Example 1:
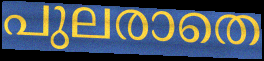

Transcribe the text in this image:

പുലരാതെ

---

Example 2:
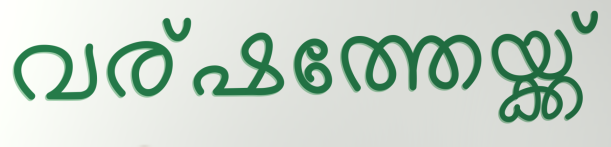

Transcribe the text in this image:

വര്ഷത്തേയ്ക്ക്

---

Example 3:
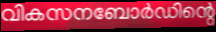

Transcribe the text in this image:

വികസനബോർഡിന്റെ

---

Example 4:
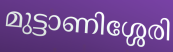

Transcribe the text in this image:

മുട്ടാണിശ്ശേരി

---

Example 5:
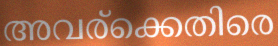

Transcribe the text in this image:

അവര്ക്കെതിരെ